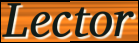
Lector